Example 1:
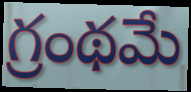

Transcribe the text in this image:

గ్రంథమే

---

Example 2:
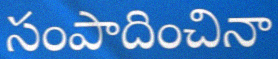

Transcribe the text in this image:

సంపాదించినా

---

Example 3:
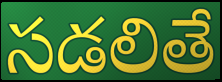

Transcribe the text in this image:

సడలితే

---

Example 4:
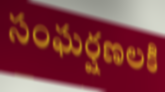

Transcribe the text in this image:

సంఘర్షణలకి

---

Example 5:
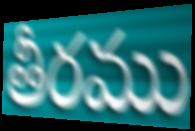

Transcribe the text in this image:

తీరము